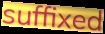
suffixed